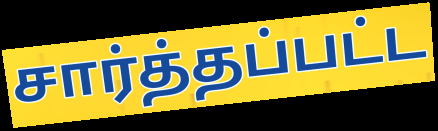
சார்த்தப்பட்ட